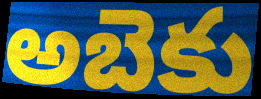
అబెకు